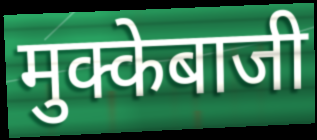
मुक्केबाजी